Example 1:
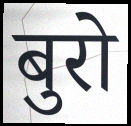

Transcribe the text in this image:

बुरो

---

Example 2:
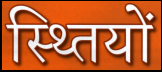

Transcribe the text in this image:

स्थ्तियों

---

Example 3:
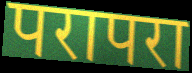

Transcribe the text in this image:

परापरा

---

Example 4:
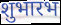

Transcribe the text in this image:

शुभारभ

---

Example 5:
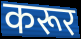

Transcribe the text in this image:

करूर